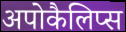
अपोकैलिप्स